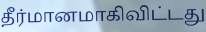
தீர்மானமாகிவிட்டது